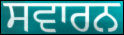
ਸਵਾਰਨ